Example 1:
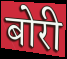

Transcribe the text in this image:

बोरी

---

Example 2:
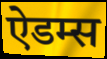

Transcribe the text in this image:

ऐडम्स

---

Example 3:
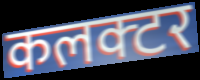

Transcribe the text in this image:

कलक्‍टर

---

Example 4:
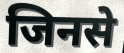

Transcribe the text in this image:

जिनसे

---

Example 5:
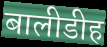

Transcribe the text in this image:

बालीडीह